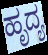
ಹೃದ್ಯ